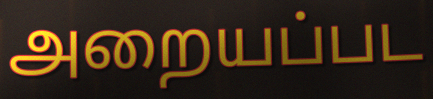
அறையப்பட